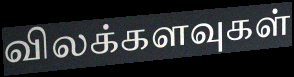
விலக்களவுகள்